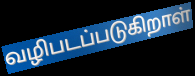
வழிபடப்படுகிறாள்